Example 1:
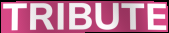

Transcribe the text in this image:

TRIBUTE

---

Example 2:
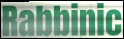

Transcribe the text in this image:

Rabbinic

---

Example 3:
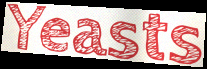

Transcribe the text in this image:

Yeasts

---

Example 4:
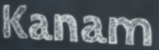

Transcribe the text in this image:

Kanam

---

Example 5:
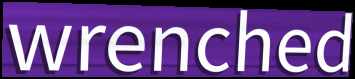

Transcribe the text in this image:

wrenched